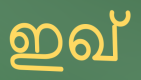
ഇഖ്